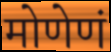
मोणेणं